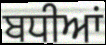
ਬਧੀਆਂ